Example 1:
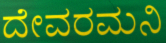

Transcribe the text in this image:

ದೇವರಮನಿ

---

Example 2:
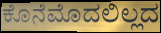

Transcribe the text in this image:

ಕೊನೆಮೊದಲಿಲ್ಲದ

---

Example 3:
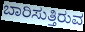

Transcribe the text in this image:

ಬಾರಿಸುತ್ತಿರುವ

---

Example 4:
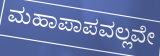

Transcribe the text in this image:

ಮಹಾಪಾಪವಲ್ಲವೇ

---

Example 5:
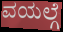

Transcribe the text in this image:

ವಯಲ್ಗೆ